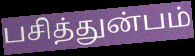
பசித்துன்பம்